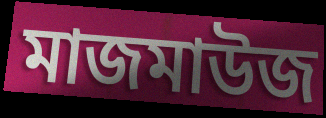
মাজমাউজ